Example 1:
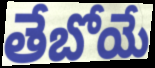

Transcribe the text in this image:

తేబోయే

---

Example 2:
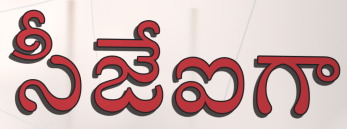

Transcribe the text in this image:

సీజేఐగా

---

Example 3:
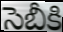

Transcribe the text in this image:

సెబీకి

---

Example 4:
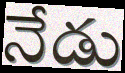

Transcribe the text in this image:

నేడు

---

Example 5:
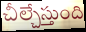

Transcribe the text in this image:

చీల్చేస్తుంది